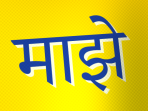
माझे